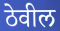
ठेवील